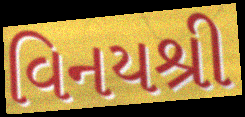
વિનયશ્રી